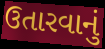
ઉતારવાનું